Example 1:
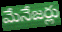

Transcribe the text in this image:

మేనేజర్లు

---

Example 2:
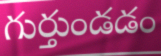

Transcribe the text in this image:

గుర్తుండడం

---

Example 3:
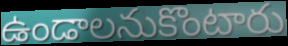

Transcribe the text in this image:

ఉండాలనుకొంటారు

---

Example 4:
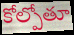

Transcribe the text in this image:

కోల్పోతూ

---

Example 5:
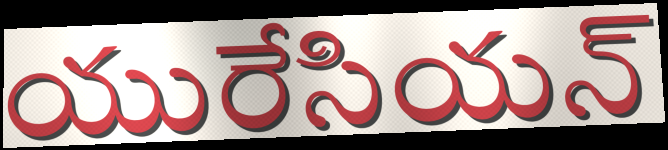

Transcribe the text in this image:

యురేసియన్